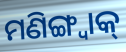
ମଣିଙ୍ଗ୍ୱାକ୍